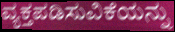
ವ್ಯಕ್ತಪಡಿಸುವಿಕೆಯನ್ನು